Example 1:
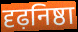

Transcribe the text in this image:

दृढ़निष्ठा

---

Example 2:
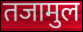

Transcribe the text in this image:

तजामुल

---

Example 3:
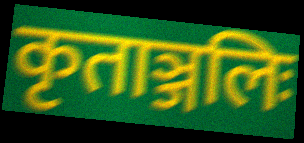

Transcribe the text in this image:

कृताञ्जलिः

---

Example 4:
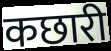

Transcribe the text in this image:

कछारी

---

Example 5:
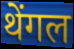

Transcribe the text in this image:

थेंगल